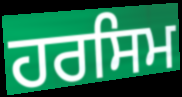
ਹਰਸਿਮ